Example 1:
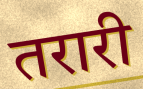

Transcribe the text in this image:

तरारी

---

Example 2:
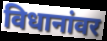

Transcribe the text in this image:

विधानांवर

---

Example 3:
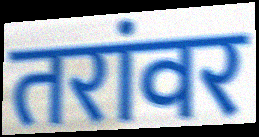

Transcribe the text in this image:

तरांवर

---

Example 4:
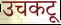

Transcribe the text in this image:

उचकटू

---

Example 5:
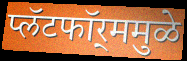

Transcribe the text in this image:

प्लॅटफॉर्ममुळे